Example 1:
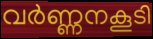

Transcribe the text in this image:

വർണ്ണനകൂടി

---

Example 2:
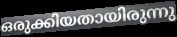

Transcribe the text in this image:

ഒരുക്കിയതായിരുന്നു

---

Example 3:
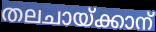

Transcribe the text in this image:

തലചായ്ക്കാന്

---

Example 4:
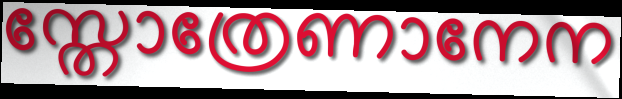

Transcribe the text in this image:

സ്തോത്രേണാനേന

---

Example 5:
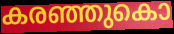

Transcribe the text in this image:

കരഞ്ഞുകൊ